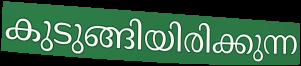
കുടുങ്ങിയിരിക്കുന്ന